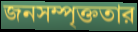
জনসম্পৃক্ততার